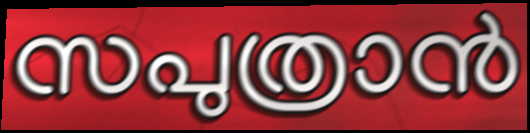
സപുത്രാൻ